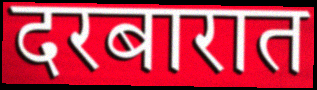
दरबारात